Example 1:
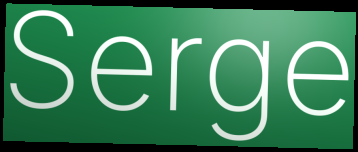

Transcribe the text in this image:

Serge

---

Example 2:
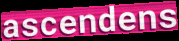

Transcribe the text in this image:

ascendens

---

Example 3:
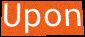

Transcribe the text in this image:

Upon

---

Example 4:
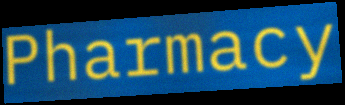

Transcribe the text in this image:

Pharmacy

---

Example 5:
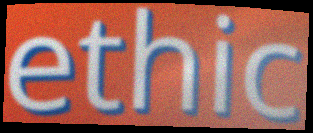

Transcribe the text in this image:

ethic